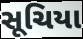
સૂચિયા